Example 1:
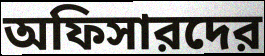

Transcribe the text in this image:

অফিসারদের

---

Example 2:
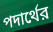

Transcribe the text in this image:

পদার্থের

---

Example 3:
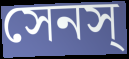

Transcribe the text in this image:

সেনস্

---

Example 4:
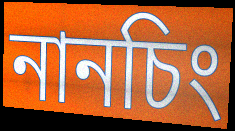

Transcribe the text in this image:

নানচিং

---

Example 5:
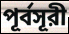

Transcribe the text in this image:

পূর্বসূরী